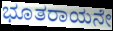
ಭೂತರಾಯನೇ